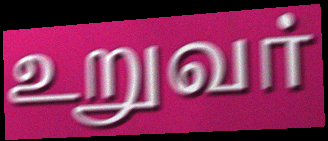
உறுவர்